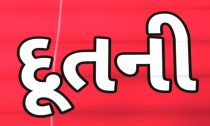
દૂતની